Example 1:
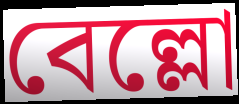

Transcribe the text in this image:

বেল্লো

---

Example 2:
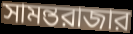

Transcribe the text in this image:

সামন্তরাজার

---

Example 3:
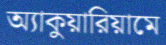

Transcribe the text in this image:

অ্যাকুয়ারিয়ামে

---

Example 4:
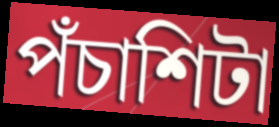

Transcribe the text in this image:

পঁচাশিটা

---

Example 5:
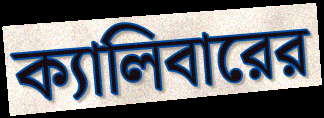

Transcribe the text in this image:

ক্যালিবারের